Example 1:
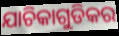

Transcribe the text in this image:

ଯାଚିକାଗୁଡିକର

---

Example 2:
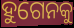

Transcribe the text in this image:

ହୁଗେନକୁ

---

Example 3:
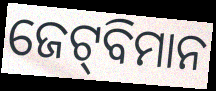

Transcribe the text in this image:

ଜେଟ୍‌ବିମାନ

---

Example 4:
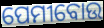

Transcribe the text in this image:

ପେମୀବୋଉ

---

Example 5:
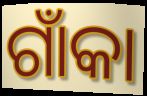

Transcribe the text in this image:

ଗାଁକା